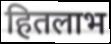
हितलाभ